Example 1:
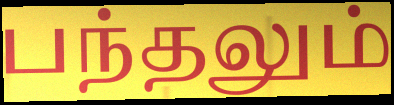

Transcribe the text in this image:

பந்தலும்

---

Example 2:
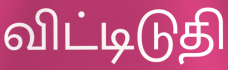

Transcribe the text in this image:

விட்டிடுதி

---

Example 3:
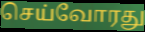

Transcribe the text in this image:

செய்வோரது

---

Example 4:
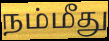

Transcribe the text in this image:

நம்மீது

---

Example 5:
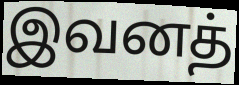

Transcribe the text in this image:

இவனத்